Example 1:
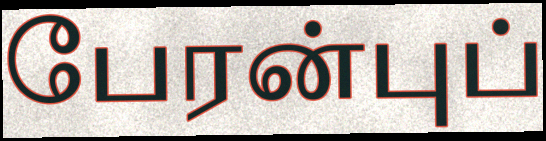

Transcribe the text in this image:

பேரன்புப்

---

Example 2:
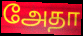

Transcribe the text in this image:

அேதா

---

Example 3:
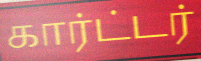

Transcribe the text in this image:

கார்ட்டர்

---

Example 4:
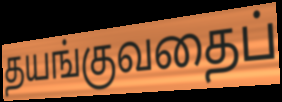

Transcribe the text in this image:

தயங்குவதைப்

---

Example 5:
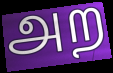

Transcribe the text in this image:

அற